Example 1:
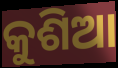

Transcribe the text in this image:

କୁଶିଆ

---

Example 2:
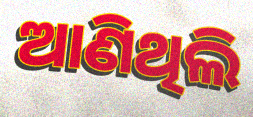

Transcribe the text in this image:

ଆଣିଥିଲି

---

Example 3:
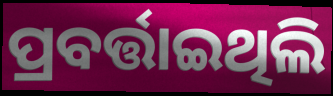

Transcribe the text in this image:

ପ୍ରବର୍ତ୍ତାଇଥିଲି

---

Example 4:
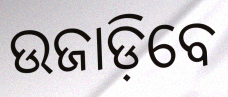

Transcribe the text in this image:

ଉଜାଡ଼ିବେ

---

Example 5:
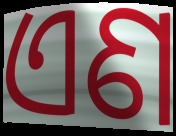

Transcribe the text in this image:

ଏଣ